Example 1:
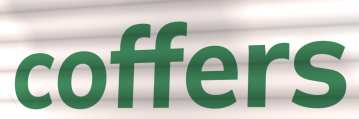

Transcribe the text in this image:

coffers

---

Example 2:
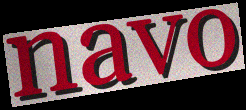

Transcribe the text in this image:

navo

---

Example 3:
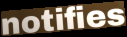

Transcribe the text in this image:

notifies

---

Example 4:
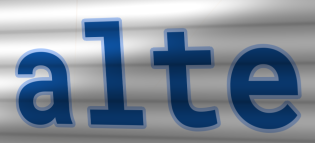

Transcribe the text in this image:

alte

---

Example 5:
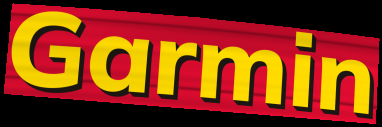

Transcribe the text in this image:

Garmin